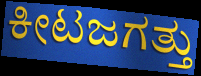
ಕೀಟಜಗತ್ತು